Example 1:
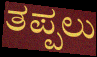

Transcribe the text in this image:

ತಪ್ಪಲು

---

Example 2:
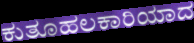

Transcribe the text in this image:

ಕುತೂಹಲಕಾರಿಯಾದ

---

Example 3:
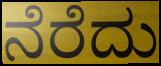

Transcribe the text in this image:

ನೆರೆದು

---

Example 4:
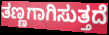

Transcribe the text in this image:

ತಣ್ಣಗಾಗಿಸುತ್ತದೆ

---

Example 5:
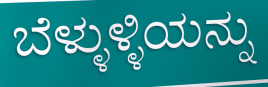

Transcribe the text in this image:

ಬೆಳ್ಳುಳ್ಳಿಯನ್ನು